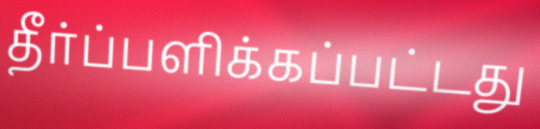
தீர்ப்பளிக்கப்பட்டது